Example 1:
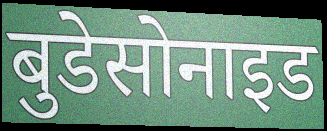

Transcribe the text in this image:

बुडेसोनाइड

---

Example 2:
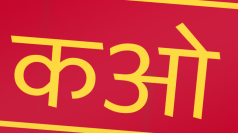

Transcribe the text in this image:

कओ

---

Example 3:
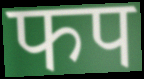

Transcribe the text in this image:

फप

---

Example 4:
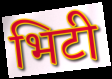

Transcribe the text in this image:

भिटी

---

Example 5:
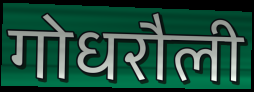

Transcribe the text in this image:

गोधरौली